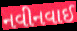
નવીનવાઈ